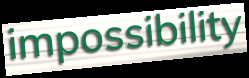
impossibility